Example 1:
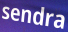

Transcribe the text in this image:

sendra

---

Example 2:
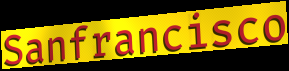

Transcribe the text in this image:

Sanfrancisco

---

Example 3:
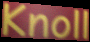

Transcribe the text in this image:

Knoll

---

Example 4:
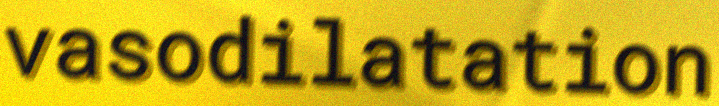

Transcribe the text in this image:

vasodilatation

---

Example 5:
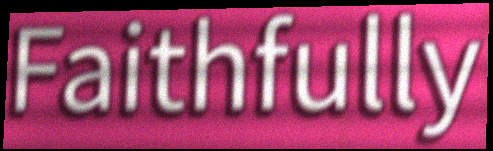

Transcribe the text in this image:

Faithfully